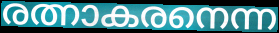
രത്നാകരനെന്ന